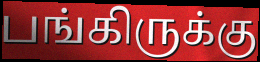
பங்கிருக்கு